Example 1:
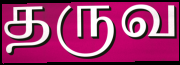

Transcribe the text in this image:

தருவ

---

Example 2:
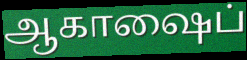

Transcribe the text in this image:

ஆகாஷைப்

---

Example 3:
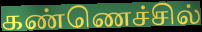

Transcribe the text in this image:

கண்ணெச்சில்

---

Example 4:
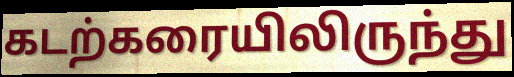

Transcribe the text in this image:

கடற்கரையிலிருந்து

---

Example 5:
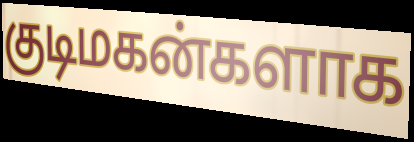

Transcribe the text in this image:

குடிமகன்களாக